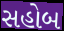
સહોબ